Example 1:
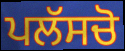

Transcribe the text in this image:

ਪਲੱਸਚੋ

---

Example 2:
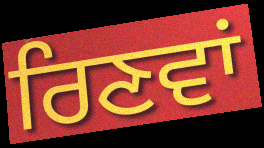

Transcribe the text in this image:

ਰਿਣਵਾਂ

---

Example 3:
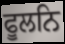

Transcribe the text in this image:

ਫੂਲਨਿ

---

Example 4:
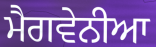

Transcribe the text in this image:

ਮੈਗਵੇਨੀਆ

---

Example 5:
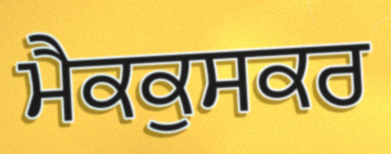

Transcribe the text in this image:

ਮੈਕਕੁਸਕਰ